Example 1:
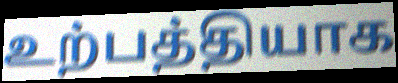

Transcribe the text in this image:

உற்பத்தியாக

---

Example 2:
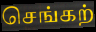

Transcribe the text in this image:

செங்கற்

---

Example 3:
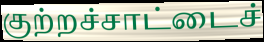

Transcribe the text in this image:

குற்றச்சாட்டைச்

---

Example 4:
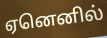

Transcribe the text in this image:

ஏனெனில்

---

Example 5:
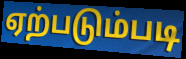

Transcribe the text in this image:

ஏற்படும்படி